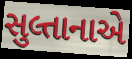
સુલ્તાનાએ